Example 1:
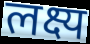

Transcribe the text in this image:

लक्ष्य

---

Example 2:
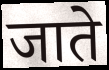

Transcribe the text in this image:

जाते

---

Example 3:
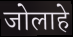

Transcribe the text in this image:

जोलाहे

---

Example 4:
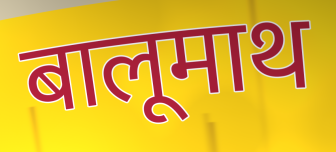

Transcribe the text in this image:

बालूमाथ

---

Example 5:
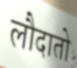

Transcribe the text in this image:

लौदातो